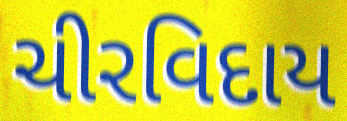
ચીરવિદાય